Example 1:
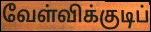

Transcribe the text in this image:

வேள்விக்குடிப்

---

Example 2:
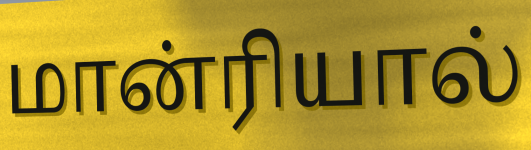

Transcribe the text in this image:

மான்ரியால்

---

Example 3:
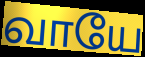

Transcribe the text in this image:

வாயே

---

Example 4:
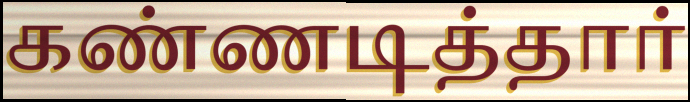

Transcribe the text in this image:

கண்ணடித்தார்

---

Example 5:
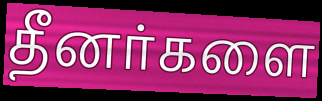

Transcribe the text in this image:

தீனர்களை